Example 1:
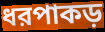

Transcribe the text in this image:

ধরপাকড়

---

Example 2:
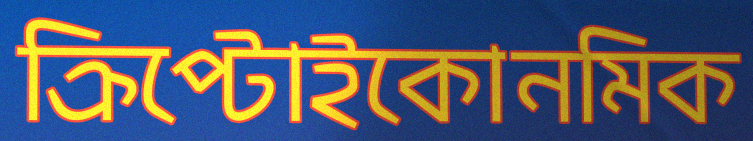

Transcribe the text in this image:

ক্রিপ্টোইকোনমিক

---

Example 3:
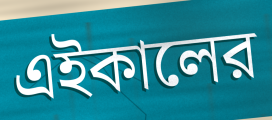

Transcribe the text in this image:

এইকালের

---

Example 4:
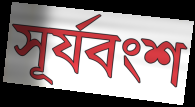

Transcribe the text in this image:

সূর্যবংশ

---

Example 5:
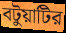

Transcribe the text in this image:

বটুয়াটির